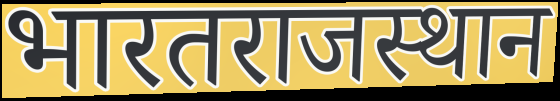
भारतराजस्थान